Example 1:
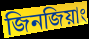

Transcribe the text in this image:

জিনজিয়াং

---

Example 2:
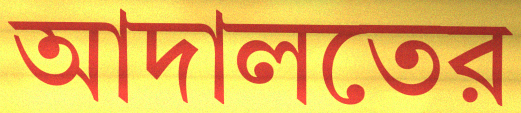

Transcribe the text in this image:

আদালতের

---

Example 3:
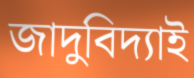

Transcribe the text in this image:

জাদুবিদ্যাই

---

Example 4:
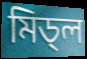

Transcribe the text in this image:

মিড্‌ল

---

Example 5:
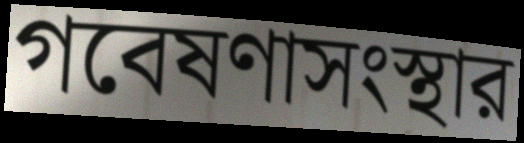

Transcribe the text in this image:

গবেষণাসংস্থার